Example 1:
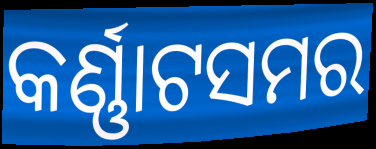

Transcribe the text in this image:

କର୍ଣ୍ଣାଟସମର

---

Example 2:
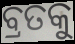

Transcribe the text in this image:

ବ୍ରତକୁ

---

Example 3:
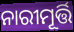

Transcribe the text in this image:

ନାରୀମୂର୍ତ୍ତି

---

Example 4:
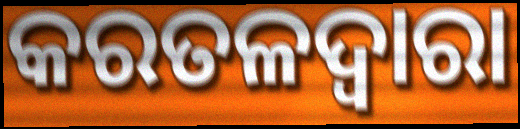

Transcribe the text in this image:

କରତଳଦ୍ୱାରା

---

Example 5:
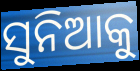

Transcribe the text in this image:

ସୁନିଆକୁ